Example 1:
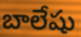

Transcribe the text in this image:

బాలేషు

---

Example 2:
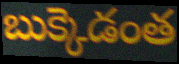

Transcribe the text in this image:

బుక్కెడంత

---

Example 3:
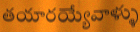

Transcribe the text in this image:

తయారయ్యేవాళ్ళు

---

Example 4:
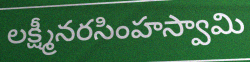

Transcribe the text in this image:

లక్ష్మీనరసింహస్వామి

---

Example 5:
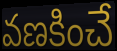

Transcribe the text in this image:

వణకించే